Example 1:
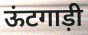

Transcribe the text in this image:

ऊंटगाड़ी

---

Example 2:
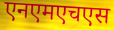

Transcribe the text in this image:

एनएमएचएस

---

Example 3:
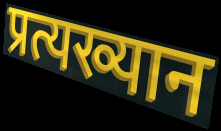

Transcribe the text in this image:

प्रत्यख्यान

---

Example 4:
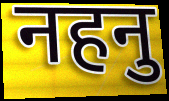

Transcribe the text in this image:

नहनु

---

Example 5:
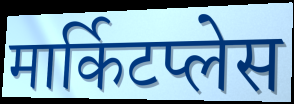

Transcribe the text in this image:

मार्किटप्लेस